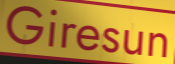
Giresun